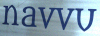
navvu